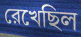
রেখেছিল